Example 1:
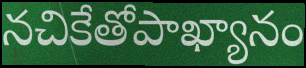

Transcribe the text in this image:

నచికేతోపాఖ్యానం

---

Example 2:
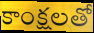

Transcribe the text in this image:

కాంక్షలతో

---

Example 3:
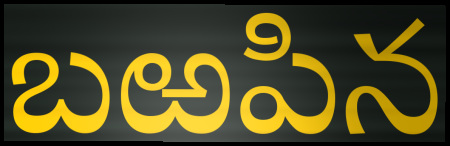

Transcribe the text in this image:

బఱపిన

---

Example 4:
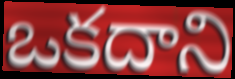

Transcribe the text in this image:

ఒకదాని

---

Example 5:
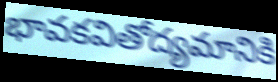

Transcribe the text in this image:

భావకవితోద్యమానికి